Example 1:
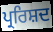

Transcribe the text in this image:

ਪ੍ਰਰਿਸ਼ਦ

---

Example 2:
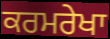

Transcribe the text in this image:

ਕਰਮਰੇਖਾ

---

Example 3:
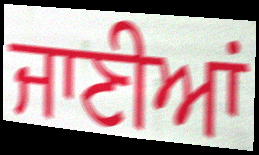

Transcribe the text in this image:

ਜਾਣੀਆਂ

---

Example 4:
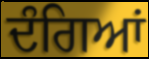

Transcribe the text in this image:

ਦੰਗਿਆਂ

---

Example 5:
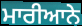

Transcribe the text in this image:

ਮਾਰੀਆਨੇ